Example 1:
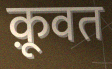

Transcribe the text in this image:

क़ूवत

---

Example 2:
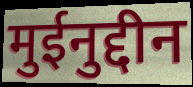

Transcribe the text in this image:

मुईनुद्दीन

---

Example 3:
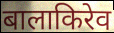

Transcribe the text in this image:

बालाकिरेव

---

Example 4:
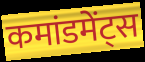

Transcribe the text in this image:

कमांडमेंट्स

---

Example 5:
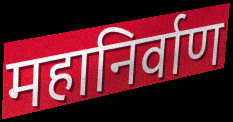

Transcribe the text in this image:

महानिर्वाण